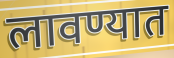
लावण्यात